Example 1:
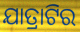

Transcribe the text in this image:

ଯାତ୍ରାଟିର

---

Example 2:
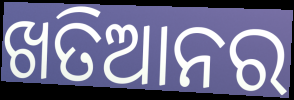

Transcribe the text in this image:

ଖତିଆନର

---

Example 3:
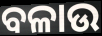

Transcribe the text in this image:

ବଳାଉ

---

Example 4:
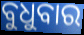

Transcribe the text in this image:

ବୁଧୁବାର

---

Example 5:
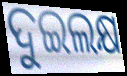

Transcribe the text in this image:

ଦୁଇଲକ୍ଷ